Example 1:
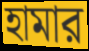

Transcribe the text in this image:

হামার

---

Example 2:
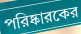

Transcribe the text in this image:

পরিষ্কারকের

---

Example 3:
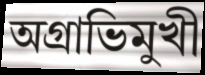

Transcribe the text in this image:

অগ্রাভিমুখী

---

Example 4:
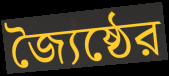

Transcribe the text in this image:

জ্যৈষ্ঠের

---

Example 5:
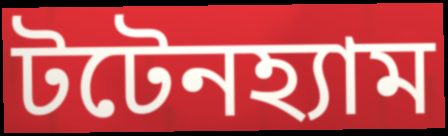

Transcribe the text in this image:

টটেনহ্যাম